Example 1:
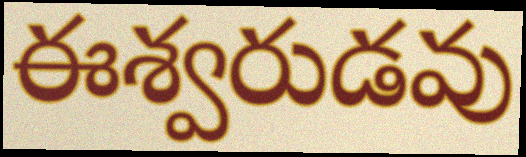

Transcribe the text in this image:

ఈశ్వరుడవు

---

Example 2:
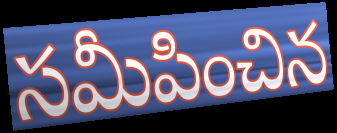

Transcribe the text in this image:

సమీపించిన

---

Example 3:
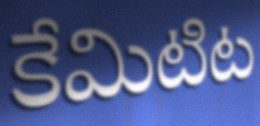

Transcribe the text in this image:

కేమిటిట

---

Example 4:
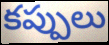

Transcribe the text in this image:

కప్పులు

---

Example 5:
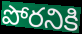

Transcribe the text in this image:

పోరనికి